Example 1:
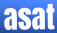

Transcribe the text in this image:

asat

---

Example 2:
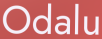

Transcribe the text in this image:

Odalu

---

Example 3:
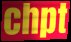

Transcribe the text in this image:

chpt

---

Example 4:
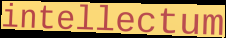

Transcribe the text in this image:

intellectum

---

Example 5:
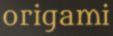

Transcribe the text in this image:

origami